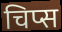
चिप्स